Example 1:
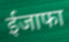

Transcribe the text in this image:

ईजाफा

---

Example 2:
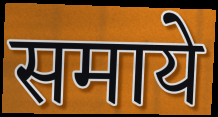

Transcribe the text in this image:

समाये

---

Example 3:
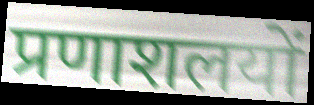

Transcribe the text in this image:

प्रणाशलयों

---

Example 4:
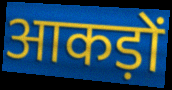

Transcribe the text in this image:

आकड़ों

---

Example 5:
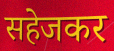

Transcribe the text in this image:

सहेजकर